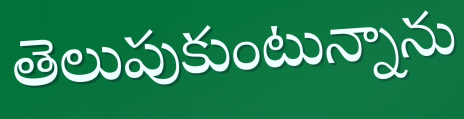
తెలుపుకుంటున్నాను